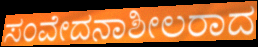
ಸಂವೇದನಾಶೀಲರಾದ